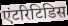
एंटरिटिडिस